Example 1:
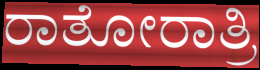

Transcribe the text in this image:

ರಾತೋರಾತ್ರಿ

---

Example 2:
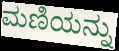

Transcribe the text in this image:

ಮಣಿಯನ್ನು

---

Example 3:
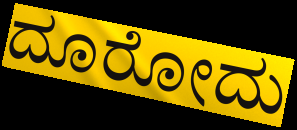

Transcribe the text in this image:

ದೂರೋದು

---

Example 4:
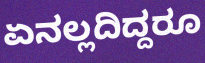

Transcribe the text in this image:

ಏನಲ್ಲದಿದ್ದರೂ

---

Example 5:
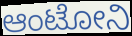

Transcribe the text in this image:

ಆಂಟೋನಿ